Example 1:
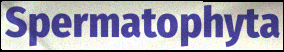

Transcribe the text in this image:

Spermatophyta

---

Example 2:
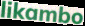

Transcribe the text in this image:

likambo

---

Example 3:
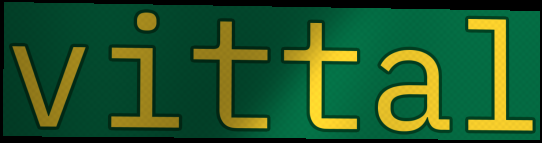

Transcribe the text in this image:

vittal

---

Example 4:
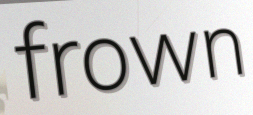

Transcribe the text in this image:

frown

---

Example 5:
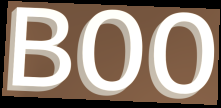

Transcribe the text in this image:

BOO